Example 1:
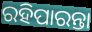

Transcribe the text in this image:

ରହିପାରନ୍ତା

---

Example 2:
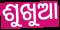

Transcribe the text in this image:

ଶୁଖୁଆ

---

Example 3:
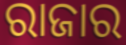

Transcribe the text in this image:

ରାଜାର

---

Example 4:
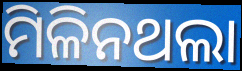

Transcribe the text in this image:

ମିଳିନଥଲା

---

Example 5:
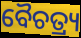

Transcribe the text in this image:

ବୈଚତ୍ର୍ୟ